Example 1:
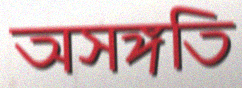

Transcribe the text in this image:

অসঙ্গতি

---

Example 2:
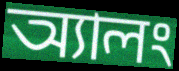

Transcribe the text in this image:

অ্যালং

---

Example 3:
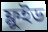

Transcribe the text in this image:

ফ্লুইড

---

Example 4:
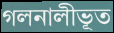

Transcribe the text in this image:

গলনালীভূত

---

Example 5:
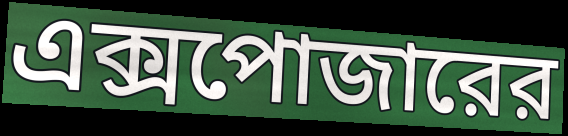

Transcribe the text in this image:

এক্সপোজারের